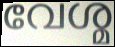
വേശ്മ